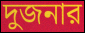
দুজনার